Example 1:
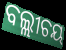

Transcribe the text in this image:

ବଲ୍ଲୀଚୟ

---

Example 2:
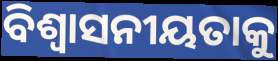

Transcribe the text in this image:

ବିଶ୍ୱାସନୀୟତାକୁ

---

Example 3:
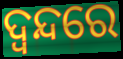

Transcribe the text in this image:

ଦ୍ୱନ୍ଦରେ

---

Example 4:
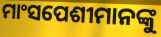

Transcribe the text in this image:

ମାଂସପେଶୀମାନଙ୍କୁ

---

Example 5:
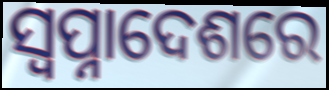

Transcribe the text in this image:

ସ୍ଵପ୍ନାଦେଶରେ